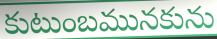
కుటుంబమునకును